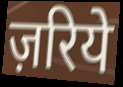
ज़रिये